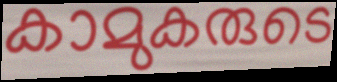
കാമുകരുടെ